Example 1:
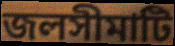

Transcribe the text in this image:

জলসীমাটি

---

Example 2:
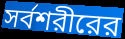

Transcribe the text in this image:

সর্বশরীরের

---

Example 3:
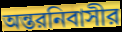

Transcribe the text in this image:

অন্তরনিবাসীর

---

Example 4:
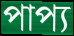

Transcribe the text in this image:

পাপ্য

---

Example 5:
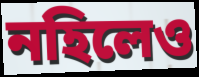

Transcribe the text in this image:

নহিলেও